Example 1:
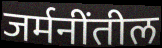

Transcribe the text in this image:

जर्मनींतील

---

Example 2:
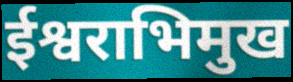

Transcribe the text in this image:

ईश्वराभिमुख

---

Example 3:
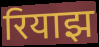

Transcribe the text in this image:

रियाझ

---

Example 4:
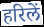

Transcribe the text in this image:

हरिलें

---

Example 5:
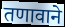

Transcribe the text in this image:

तणावाने